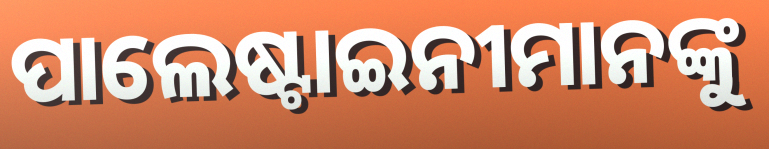
ପାଲେଷ୍ଟାଇନୀମାନଙ୍କୁ